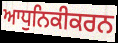
ਆਧੁਨਿਕੀਕਰਨ